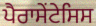
ਪੈਰਾਸੇਂਟੇਸਿਸ